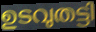
ഉടവുതട്ടി